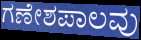
ಗಣೇಶಪಾಲವು